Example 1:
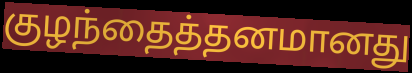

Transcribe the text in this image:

குழந்தைத்தனமானது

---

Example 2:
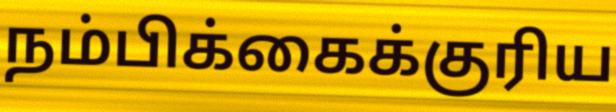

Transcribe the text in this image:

நம்பிக்கைக்குரிய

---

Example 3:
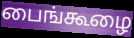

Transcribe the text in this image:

பைங்கூழை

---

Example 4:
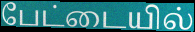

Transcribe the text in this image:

பேட்டையில்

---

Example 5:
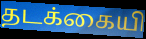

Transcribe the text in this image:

தடக்கையி